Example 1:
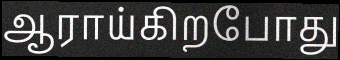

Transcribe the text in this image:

ஆராய்கிறபோது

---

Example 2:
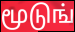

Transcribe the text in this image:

மூடுங்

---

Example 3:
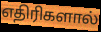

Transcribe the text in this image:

எதிரிகளால்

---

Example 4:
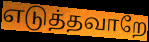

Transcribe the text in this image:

எடுத்தவாறே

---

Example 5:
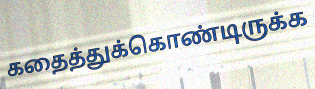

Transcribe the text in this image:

கதைத்துக்கொண்டிருக்க